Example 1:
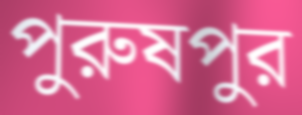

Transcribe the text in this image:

পুরুষপুর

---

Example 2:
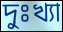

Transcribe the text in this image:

দুঃখ্যা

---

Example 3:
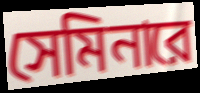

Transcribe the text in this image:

সেমিনারে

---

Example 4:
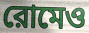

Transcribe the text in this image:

রোমেও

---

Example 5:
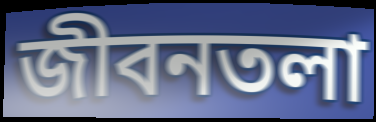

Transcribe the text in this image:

জীবনতলা